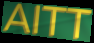
AITT